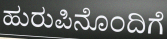
ಹುರುಪಿನೊಂದಿಗೆ